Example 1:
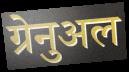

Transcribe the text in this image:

ग्रेनुअल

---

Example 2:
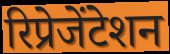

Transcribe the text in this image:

रिप्रेजेंटेशन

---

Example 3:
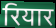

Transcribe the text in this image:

रियार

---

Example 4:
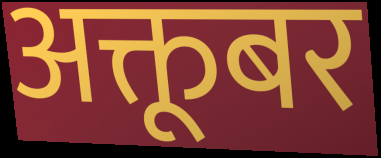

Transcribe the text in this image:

अक्तूबर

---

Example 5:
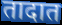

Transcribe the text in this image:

तादात